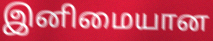
இனிமையான